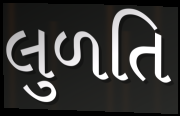
લુળતિ